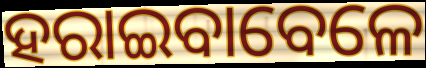
ହରାଇବାବେଳେ